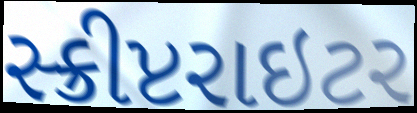
સ્ક્રીપ્ટરાઇટર